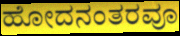
ಹೋದನಂತರವೂ